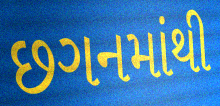
છગનમાંથી